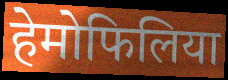
हेमोफिलिया